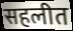
सहलीत